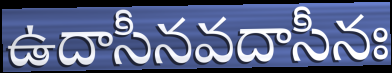
ఉదాసీనవదాసీనః